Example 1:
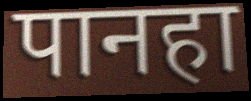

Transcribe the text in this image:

पानहा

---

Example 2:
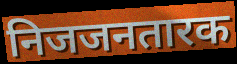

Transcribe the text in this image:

निजजनतारक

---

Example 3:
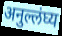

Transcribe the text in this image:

अनुल्लंघ्य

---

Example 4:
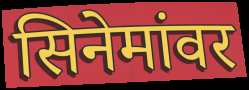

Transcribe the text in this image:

सिनेमांवर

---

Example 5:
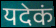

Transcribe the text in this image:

यदेकं